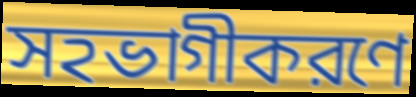
সহভাগীকরণে